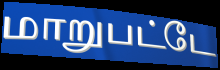
மாறுபட்டே